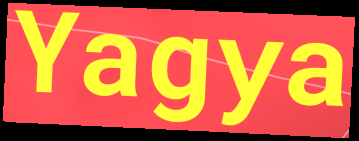
Yagya